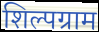
शिल्पग्राम